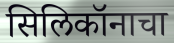
सिलिकॉनाचा